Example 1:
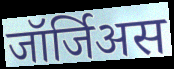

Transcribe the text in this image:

जॉर्जिअस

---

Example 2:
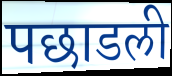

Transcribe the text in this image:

पछाडली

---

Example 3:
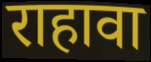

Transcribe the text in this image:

राहावा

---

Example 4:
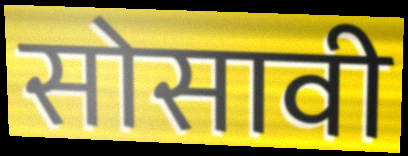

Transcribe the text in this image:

सोसावी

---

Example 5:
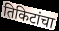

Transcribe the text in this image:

तिकिटांचा